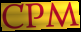
CPM